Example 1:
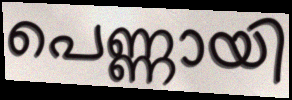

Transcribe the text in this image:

പെണ്ണായി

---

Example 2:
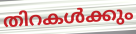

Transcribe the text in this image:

തിറകൾക്കും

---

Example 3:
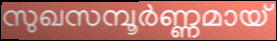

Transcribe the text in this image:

സുഖസമ്പൂർണ്ണമായ്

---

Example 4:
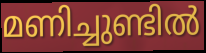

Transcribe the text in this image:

മണിച്ചുണ്ടിൽ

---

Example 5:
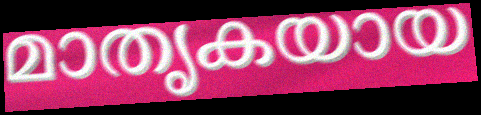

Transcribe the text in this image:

മാതൃകയായ